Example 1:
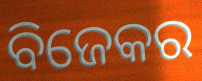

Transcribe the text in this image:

ବିଜେକର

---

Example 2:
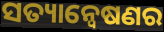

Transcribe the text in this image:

ସତ୍ୟାନ୍ୱେଷଣର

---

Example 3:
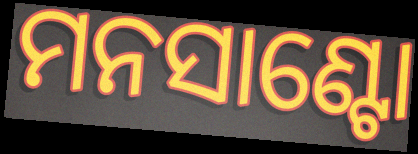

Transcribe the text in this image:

ମନସାଣ୍ଟୋ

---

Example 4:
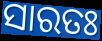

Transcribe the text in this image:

ସାରତଃ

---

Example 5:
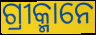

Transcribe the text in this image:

ଗ୍ରୀକ୍ମାନେ